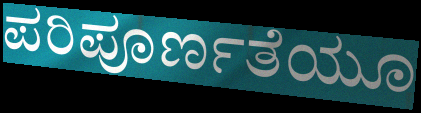
ಪರಿಪೂರ್ಣತೆಯೂ